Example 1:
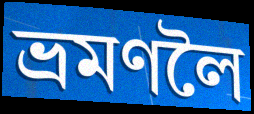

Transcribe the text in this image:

ভ্ৰমণলৈ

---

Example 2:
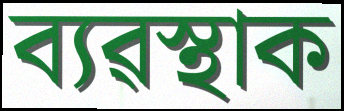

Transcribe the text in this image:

ব্যৱস্থাক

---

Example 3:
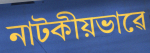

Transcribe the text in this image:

নাটকীয়ভাৱে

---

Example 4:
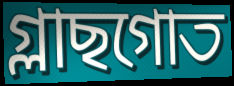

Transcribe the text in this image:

গ্লাছগোত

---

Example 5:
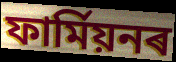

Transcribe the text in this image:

ফাৰ্মিয়নৰ